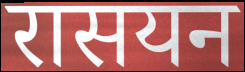
रासयन